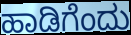
ಹಾಡಿಗೆಂದು